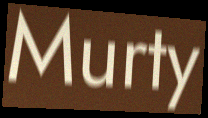
Murty